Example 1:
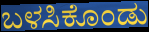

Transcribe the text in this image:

ಬಳಸಿಕೊಂಡು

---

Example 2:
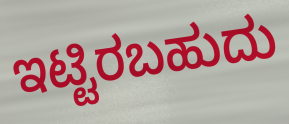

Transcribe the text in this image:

ಇಟ್ಟಿರಬಹುದು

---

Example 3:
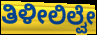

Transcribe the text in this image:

ತಿಳೀಲಿಲ್ವೇ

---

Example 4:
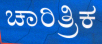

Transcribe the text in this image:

ಚಾರಿತ್ರಿಕ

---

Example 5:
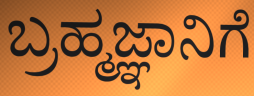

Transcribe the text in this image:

ಬ್ರಹ್ಮಜ್ಞಾನಿಗೆ